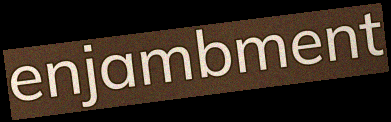
enjambment